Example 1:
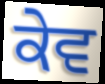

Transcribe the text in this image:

ਕੇਵ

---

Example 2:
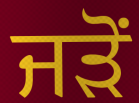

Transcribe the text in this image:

ਜਡ਼ੋਂ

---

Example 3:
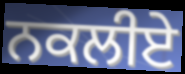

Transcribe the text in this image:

ਨਕਲੀਏ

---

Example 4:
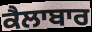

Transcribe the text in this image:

ਕੈਲਾਬਾਰ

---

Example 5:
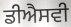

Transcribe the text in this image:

ਡੀਐਸਵੀ